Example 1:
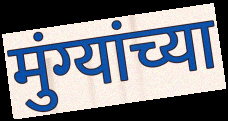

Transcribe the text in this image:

मुंग्यांच्या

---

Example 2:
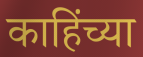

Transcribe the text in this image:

काहिंच्या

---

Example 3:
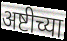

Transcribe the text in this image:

अष्टीच्या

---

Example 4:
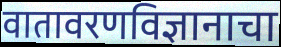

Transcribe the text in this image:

वातावरणविज्ञानाचा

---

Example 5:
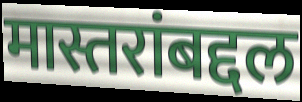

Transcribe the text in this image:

मास्तरांबद्दल